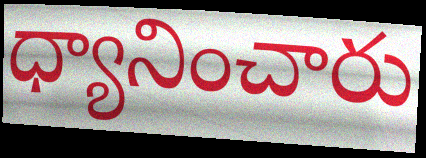
ధ్యానించారు